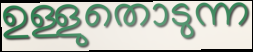
ഉള്ളുതൊടുന്ന